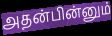
அதன்பின்னும்